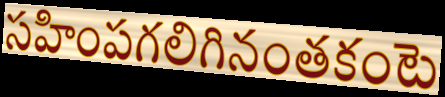
సహింపగలిగినంతకంటె